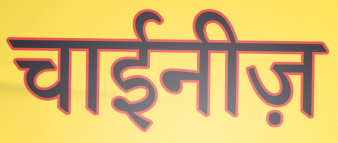
चाईनीज़